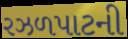
રઝળપાટની